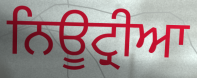
ਨਿਊਟ੍ਰੀਆ